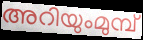
അറിയുംമുമ്പ്